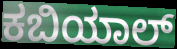
ಕಬಿಯಾಲ್